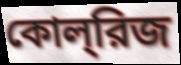
কোল্‌রিজ